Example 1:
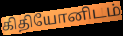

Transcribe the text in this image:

கிதியோனிடம்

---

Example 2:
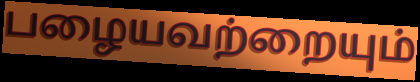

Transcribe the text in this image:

பழையவற்றையும்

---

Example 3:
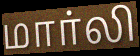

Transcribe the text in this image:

மார்லி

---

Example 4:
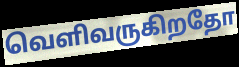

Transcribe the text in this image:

வெளிவருகிறதோ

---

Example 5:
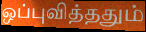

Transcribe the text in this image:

ஒப்புவித்ததும்